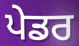
ਪੇਡਰ